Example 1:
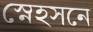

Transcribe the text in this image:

স্নেহসনে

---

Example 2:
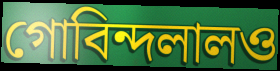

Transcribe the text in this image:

গোবিন্দলালও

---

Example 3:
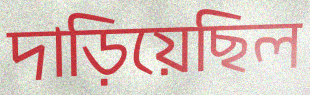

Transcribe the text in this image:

দাড়িয়েছিল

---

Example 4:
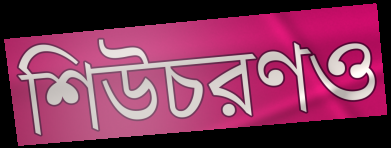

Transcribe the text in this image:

শিউচরণও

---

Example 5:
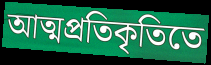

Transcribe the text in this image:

আত্মপ্রতিকৃতিতে